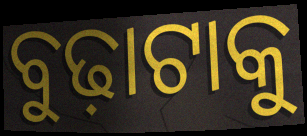
ବୁଢ଼ାଟାକୁ